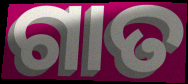
ଗାତ